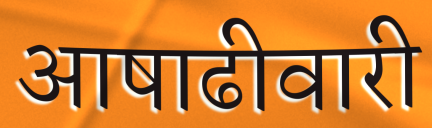
आषाढीवारी